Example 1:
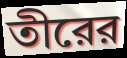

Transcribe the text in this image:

তীরের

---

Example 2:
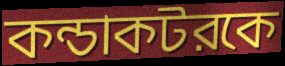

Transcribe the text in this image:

কন্ডাকটরকে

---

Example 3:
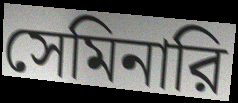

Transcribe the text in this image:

সেমিনারি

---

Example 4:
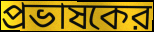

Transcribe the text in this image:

প্রভাষকের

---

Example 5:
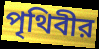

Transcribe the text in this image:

পৃথিবীর